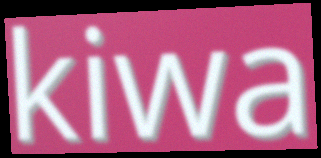
kiwa